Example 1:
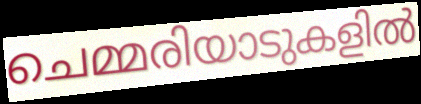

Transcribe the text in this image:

ചെമ്മരിയാടുകളിൽ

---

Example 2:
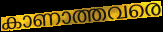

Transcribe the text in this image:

കാണാത്തവരെ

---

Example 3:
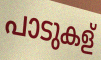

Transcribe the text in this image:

പാടുകള്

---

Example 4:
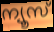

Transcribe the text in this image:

ന്യൂസ്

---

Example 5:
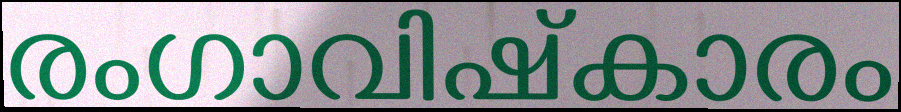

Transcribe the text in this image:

രംഗാവിഷ്‌കാരം